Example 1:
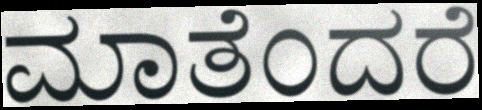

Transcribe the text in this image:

ಮಾತೆಂದರೆ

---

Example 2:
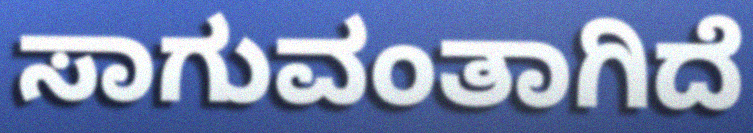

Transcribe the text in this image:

ಸಾಗುವಂತಾಗಿದೆ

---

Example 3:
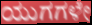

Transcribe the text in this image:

ಯುಗಗಳೇ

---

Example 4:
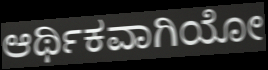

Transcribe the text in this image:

ಆರ್ಥಿಕವಾಗಿಯೋ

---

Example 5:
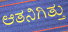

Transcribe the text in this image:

ಆತನಿಗಿತ್ತು